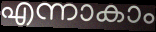
എന്നാകാം